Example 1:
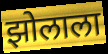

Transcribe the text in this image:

झोलाला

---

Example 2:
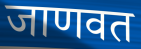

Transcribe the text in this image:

जाणवत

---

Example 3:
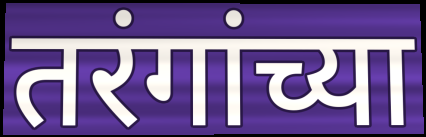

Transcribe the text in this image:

तरंगांच्या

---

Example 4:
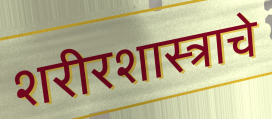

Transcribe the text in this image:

शरीरशास्त्राचे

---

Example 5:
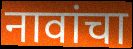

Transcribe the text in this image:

नावांचा